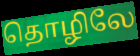
தொழிலே